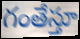
గంతేస్తూ